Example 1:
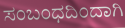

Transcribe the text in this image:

ಸಂಬಂಧದಿಂದಾಗಿ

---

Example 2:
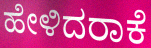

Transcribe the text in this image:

ಹೇಳಿದರಾಕೆ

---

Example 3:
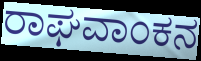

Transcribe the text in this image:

ರಾಘವಾಂಕನ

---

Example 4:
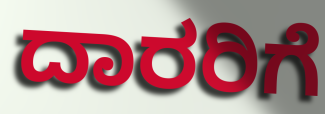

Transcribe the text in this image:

ದಾರರಿಗೆ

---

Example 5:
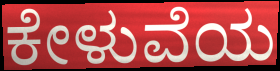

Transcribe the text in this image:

ಕೇಳುವೆಯ